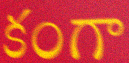
కంగా